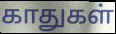
காதுகள்